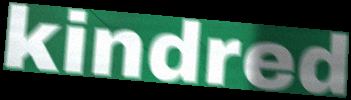
kindred